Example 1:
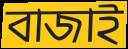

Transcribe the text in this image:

বাজাই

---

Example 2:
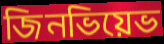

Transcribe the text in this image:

জিনভিয়েভ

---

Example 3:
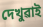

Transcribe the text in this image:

দেখুৱাই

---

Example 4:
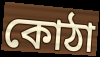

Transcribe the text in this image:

কোঠা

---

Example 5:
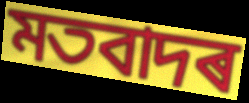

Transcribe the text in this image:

মতবাদৰ